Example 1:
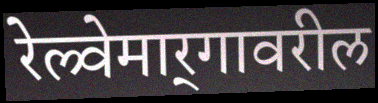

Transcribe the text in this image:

रेल्वेमार्गावरील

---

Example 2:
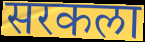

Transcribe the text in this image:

सरकला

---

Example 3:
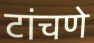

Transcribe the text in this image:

टांचणे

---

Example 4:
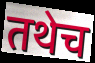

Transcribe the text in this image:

तथेच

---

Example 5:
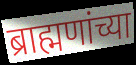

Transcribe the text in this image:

ब्राह्मणांच्या